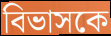
বিভাসকে